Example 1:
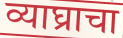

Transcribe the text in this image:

व्याघ्राचा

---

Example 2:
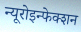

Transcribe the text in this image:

न्यूरोइन्फेक्शन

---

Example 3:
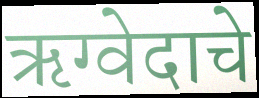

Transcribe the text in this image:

ऋग्वेदाचे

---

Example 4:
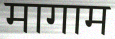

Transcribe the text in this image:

मागाम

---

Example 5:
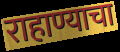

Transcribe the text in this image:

राहाण्याचा